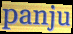
panju